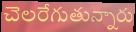
చెలరేగుతున్నారు